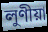
লুণীয়া